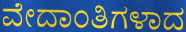
ವೇದಾಂತಿಗಳಾದ